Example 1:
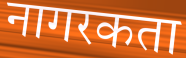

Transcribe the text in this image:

नागरकता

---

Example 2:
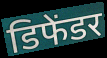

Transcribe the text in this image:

डिफेंडर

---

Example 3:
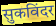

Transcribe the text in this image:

सुकविंदर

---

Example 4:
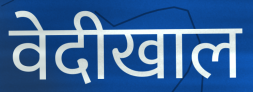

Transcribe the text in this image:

वेदीखाल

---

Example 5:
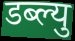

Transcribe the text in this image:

डब्ल्यु